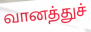
வானத்துச்